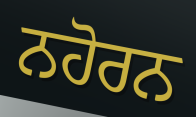
ਨਹੋਰਨ